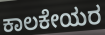
ಕಾಲಕೇಯರ